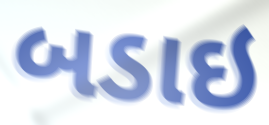
બડાઇ